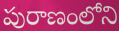
పురాణంలోని